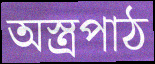
অস্ত্রপাঠ